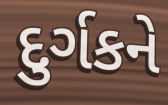
દુર્ગકને